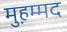
मुह़म्मद